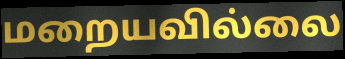
மறையவில்லை